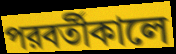
পরবর্তীকালে